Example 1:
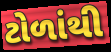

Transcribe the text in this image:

ટોળાંથી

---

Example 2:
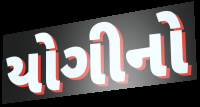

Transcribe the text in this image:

યોગીનો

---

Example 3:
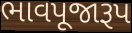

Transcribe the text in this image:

ભાવપૂજારૂપ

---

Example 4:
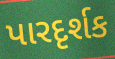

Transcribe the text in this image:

પારદૃર્શક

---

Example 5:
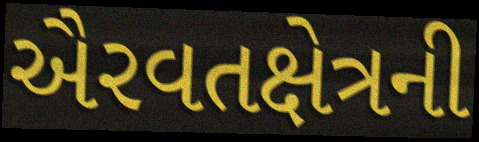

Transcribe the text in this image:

ઐરવતક્ષેત્રની